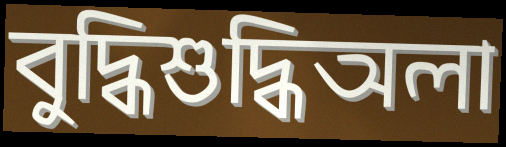
বুদ্ধিশুদ্ধিঅলা